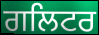
ਗਲਿਟਰ